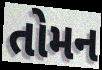
તોમન